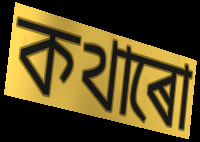
কথাৰো